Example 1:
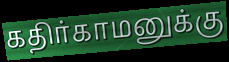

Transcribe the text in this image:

கதிர்காமனுக்கு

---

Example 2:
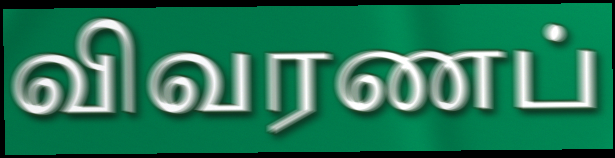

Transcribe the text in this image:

விவரணப்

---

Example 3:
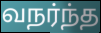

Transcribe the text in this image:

வநர்ந்த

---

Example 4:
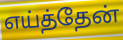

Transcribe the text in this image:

எய்த்தேன்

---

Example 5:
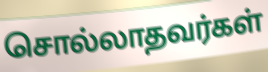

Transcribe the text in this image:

சொல்லாதவர்கள்